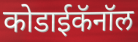
कोडाईकॅनॉल